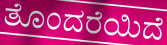
ತೊಂದರೆಯಿದೆ